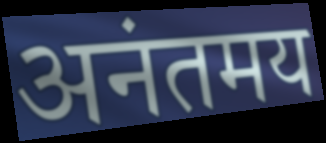
अनंतमय